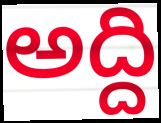
అద్ది